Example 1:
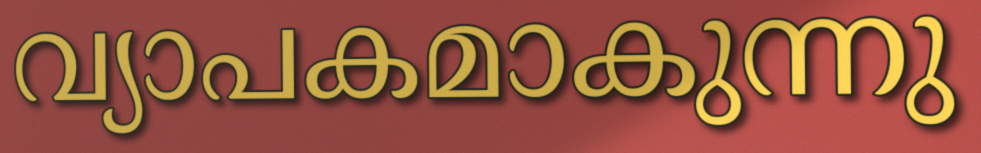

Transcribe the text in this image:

വ്യാപകമാകുന്നു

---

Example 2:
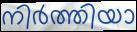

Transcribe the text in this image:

നിർത്തിയാ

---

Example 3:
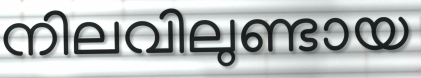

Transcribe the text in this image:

നിലവിലുണ്ടായ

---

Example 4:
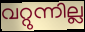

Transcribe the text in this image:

വറ്റുന്നില്ല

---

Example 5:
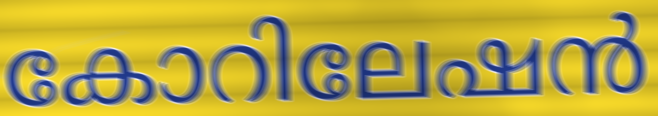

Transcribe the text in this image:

കോറിലേഷൻ